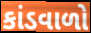
કાંડવાળો